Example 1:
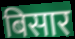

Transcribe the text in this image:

बिसार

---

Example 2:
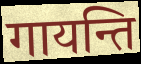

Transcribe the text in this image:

गायन्ति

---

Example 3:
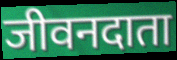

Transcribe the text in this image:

जीवनदाता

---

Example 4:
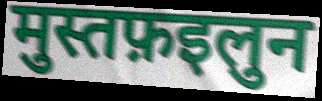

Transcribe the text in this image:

मुस्तफ़इलुन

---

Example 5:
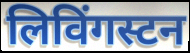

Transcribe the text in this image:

लिविंगस्टन